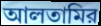
আলতামির